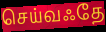
செய்வஃதே